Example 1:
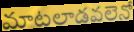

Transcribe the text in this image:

మాటలాడవలెనో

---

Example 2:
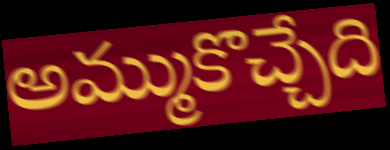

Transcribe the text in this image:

అమ్ముకొచ్చేది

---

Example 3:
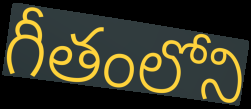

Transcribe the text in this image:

గీతంలోని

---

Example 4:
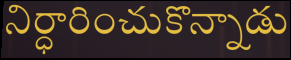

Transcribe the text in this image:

నిర్ధారించుకొన్నాడు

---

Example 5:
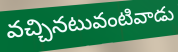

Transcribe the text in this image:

వచ్చినటువంటివాడు